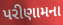
પરીણામના